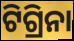
ଟିଗ୍ରିନା